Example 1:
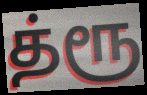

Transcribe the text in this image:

த்ரூ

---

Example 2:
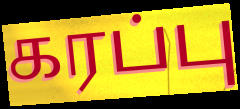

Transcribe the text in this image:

கரப்பு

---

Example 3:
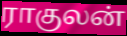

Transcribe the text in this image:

ராகுலன்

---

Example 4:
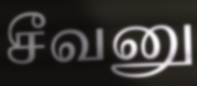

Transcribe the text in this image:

சீவனு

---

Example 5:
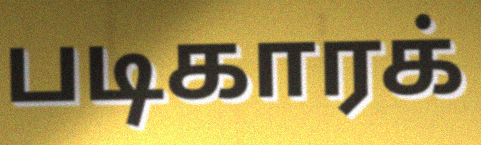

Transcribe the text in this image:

படிகாரக்